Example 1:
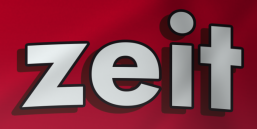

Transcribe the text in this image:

zeit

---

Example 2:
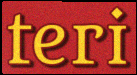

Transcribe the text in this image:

teri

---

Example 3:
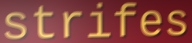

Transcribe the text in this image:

strifes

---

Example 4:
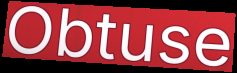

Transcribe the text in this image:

Obtuse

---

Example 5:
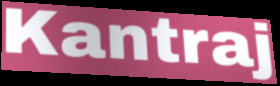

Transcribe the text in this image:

Kantraj